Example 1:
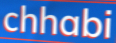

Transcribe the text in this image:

chhabi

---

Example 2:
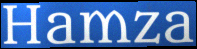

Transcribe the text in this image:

Hamza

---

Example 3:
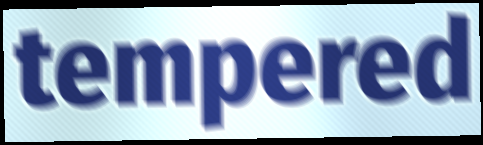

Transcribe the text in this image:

tempered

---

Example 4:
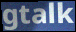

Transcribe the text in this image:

gtalk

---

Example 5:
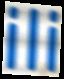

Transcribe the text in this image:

ili